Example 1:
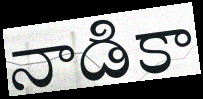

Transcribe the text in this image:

నాడికా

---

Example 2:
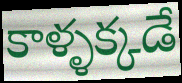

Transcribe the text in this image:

కాళ్ళక్కడే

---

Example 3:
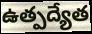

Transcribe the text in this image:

ఉత్పద్యేత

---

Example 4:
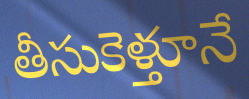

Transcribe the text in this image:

తీసుకెళ్తూనే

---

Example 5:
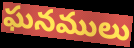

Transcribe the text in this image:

ఘనములు